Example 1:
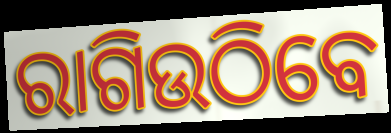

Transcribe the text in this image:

ରାଗିଉଠିବେ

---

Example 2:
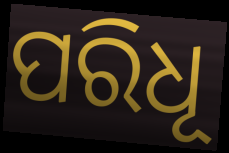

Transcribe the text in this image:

ପରିଧୂ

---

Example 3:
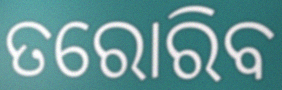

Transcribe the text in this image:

ତରୋରିବ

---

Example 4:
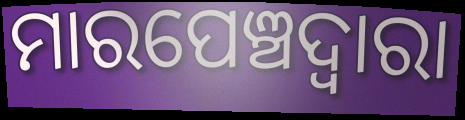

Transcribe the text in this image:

ମାରପେଞ୍ଚଦ୍ବାରା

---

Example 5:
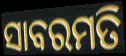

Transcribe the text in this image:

ସାବରମତି